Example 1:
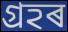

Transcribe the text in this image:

গ্ৰহৰ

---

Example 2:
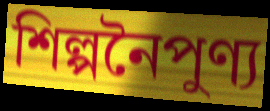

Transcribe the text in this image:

শিল্পনৈপুণ্য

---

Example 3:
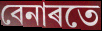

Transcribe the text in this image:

বেনাৰতে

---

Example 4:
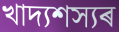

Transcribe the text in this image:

খাদ্যশস্যৰ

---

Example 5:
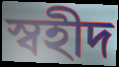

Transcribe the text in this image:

স্বহীদ